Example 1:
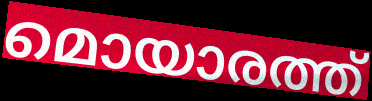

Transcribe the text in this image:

മൊയാരത്ത്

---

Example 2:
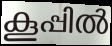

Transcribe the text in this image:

കൂപ്പിൽ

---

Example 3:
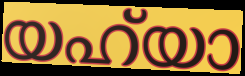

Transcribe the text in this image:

യഹ്‌യാ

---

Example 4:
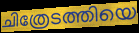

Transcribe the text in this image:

ചിത്രേടത്തിയെ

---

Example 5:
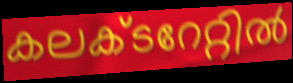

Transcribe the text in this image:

കലക്ടറേറ്റിൽ